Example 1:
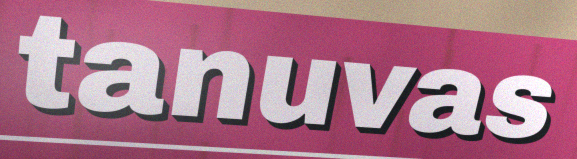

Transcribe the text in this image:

tanuvas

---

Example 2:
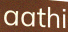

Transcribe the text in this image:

aathi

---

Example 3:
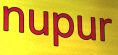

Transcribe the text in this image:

nupur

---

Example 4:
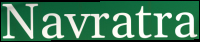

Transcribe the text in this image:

Navratra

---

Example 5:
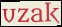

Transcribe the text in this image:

uzak